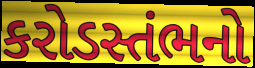
કરોડસ્તંભનો